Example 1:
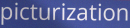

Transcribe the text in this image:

picturization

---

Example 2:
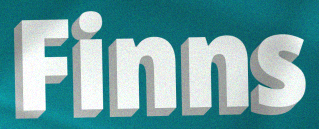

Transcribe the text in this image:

Finns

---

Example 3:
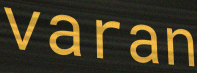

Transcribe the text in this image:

varan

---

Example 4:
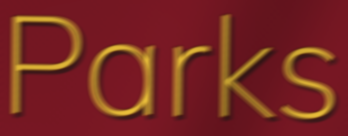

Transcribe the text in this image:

Parks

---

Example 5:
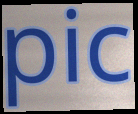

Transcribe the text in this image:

pic